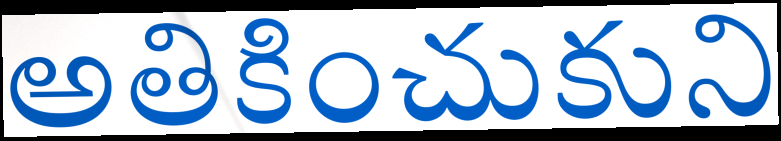
అతికించుకుని